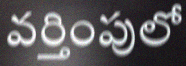
వర్తింపులో